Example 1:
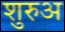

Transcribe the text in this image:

शुरुअ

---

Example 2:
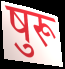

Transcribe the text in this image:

षुरू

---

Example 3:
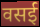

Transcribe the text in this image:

वसई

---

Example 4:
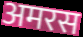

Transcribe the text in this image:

अमरस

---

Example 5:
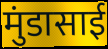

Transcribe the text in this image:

मुंडासाई